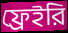
ফ্রেইরি